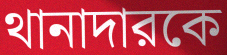
থানাদারকে